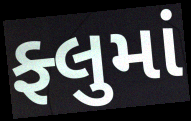
ફ્લુમાં